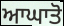
ਆਘਾਤੋ